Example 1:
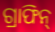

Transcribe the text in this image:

ଗ୍ରାଫିନ୍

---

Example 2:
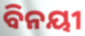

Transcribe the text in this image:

ବିନୟୀ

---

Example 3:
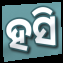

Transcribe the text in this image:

ହସି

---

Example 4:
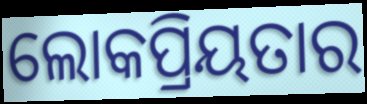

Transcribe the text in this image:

ଲୋକପ୍ରିୟତାର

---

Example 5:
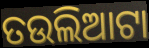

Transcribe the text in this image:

ତଉଲିଆଟା